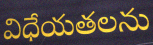
విధేయతలను